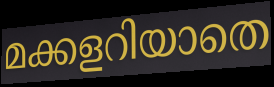
മക്കളറിയാതെ